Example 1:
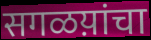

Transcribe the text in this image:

सगळय़ांचा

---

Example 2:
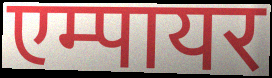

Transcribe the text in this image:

एम्पायर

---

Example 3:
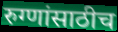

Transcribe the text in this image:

रुग्णांसाठीच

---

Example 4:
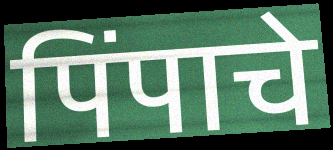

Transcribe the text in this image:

पिंपाचे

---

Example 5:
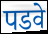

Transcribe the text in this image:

पडवे